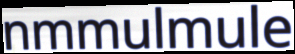
nmmulmule